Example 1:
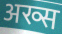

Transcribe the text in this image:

अख्स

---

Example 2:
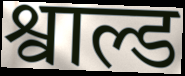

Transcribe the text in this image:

श्वाल्ड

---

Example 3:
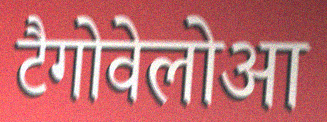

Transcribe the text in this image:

टैगोवेलोआ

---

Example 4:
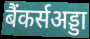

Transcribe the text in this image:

बैंकर्सअड्डा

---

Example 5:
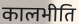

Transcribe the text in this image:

कालभीति